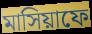
মাসিয়াফে